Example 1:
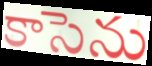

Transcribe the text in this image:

కాసెను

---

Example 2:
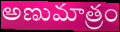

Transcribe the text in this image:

అణుమాత్రం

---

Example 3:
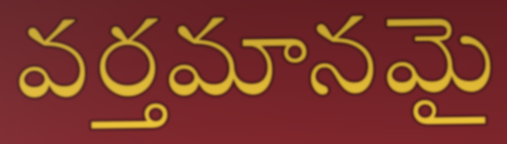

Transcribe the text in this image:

వర్తమానమై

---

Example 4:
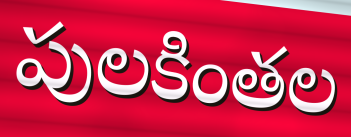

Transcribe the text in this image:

పులకింతల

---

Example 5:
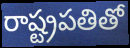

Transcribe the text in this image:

రాష్ట్రపతితో